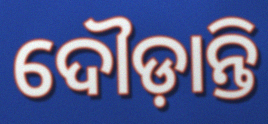
ଦୌଡ଼ାନ୍ତି